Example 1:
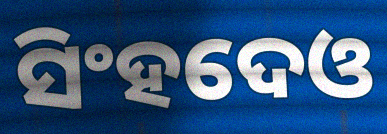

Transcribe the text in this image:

ସିଂହଦେଓ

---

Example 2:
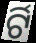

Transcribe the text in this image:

ର୍ଟି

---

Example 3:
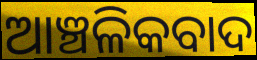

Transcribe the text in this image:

ଆଞ୍ଚଳିକବାଦ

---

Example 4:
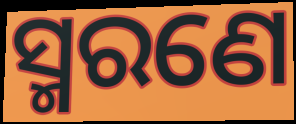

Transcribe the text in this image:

ସ୍ମରଣେ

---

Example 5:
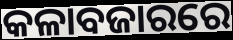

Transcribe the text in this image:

କଳାବଜାରରେ